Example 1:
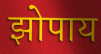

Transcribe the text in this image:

झोपाय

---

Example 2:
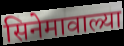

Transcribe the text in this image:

सिनेमावाल्या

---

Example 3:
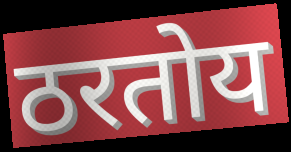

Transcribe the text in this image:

ठरतोय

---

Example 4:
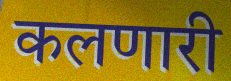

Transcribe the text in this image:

कलणारी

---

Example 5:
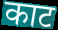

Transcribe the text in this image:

काट